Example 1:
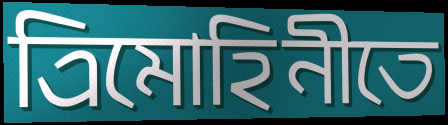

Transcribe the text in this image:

ত্রিমোহিনীতে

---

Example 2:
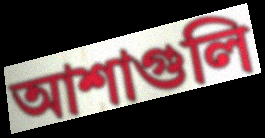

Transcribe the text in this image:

আশাগুলি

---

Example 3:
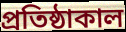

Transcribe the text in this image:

প্রতিষ্ঠাকাল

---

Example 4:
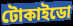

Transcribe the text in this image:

টোকাইডো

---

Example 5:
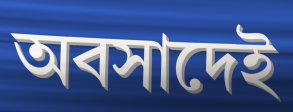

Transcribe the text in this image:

অবসাদেই